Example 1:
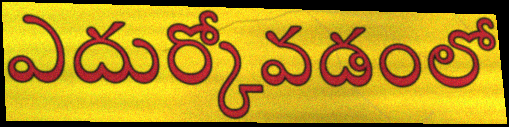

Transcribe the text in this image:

ఎదుర్కోవడంలో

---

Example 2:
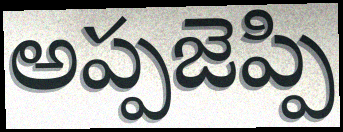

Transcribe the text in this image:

అప్పజెప్పి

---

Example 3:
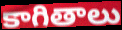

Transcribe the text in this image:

కాగితాలు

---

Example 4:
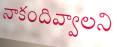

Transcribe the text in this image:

నాకందివ్వాలని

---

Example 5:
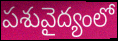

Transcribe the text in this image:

పశువైద్యంలో